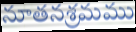
నూతనశ్రమము